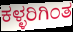
ಕಳ್ಳರಿಗಿಂತ